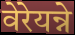
वेरेयन्ने